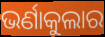
ଭର୍ଣାକୁଲାର